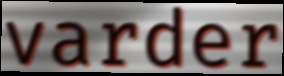
varder